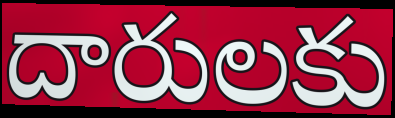
దారులకు